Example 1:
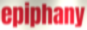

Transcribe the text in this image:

epiphany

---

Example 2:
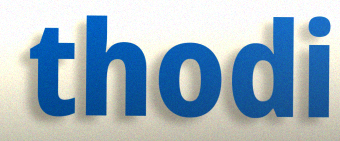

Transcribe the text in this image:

thodi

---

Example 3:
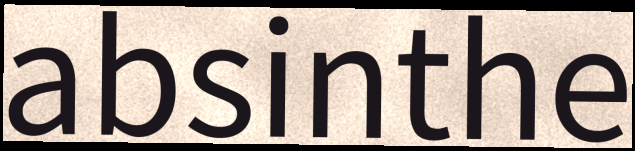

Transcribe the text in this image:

absinthe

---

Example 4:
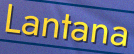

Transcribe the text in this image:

Lantana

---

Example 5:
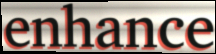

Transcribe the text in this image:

enhance